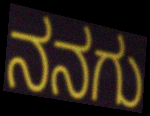
ನನಗು